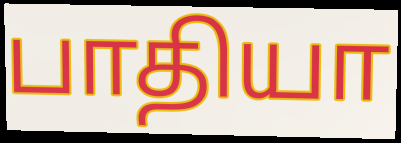
பாதியா